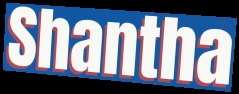
Shantha